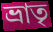
ভ্ৰাতৃ